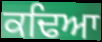
ਕਢਿਆ